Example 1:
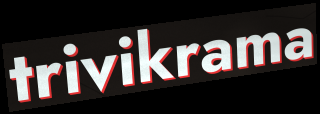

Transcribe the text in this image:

trivikrama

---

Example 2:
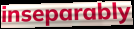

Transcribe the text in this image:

inseparably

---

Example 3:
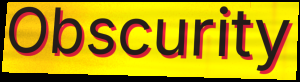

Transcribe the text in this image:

Obscurity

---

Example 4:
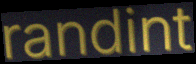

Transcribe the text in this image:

randint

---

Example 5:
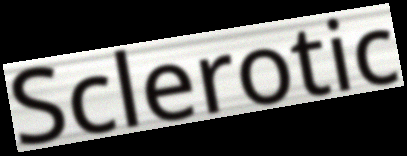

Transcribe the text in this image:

Sclerotic